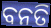
ବନତି